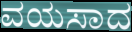
ವಯಸಾದ